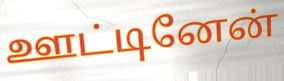
ஊட்டினேன்